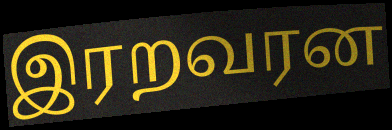
இரறவரன